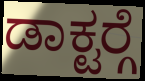
ಡಾಕ್ಟರ್‍ಗೆ